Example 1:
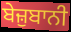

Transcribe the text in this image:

ਬੇਜ਼ੁਬਾਨੀ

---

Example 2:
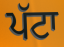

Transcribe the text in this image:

ਪੱਟਾ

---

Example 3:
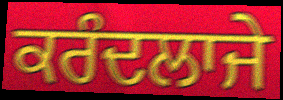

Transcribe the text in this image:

ਕਰੰਦਲਾਜੇ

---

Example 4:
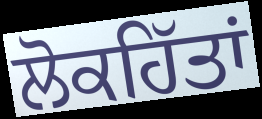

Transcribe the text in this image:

ਲੋਕਹਿੱਤਾਂ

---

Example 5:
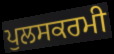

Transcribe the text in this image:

ਪੁਲਸਕਰਮੀ